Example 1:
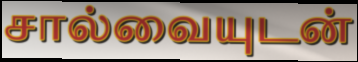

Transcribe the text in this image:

சால்வையுடன்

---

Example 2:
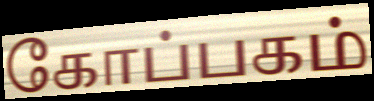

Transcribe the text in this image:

கோப்பகம்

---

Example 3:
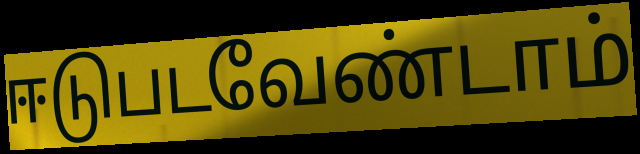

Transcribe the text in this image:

ஈடுபடவேண்டாம்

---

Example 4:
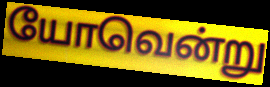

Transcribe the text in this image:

யோவென்று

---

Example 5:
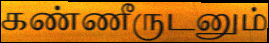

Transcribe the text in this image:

கண்ணீருடனும்